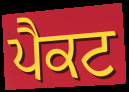
ਪੈਕਟ